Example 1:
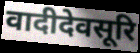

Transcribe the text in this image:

वादीदेवसूरि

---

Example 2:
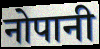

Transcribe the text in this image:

नोपानी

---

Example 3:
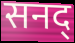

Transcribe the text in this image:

सनद्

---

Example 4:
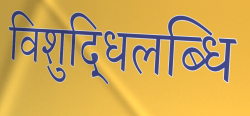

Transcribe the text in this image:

विशुद्धिलब्धि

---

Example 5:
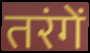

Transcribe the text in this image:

तरंगें